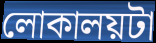
লোকালয়টা